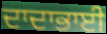
ਦਾਦਾਭਾਈ